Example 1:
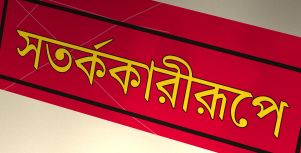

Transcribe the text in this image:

সতর্ককারীরূপে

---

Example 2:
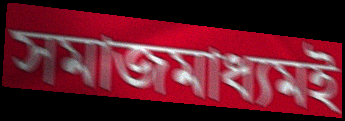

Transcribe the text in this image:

সমাজমাধ্যমই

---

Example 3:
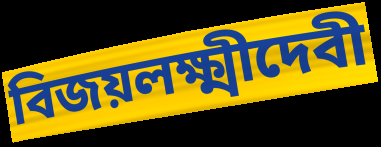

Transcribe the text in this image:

বিজয়লক্ষ্মীদেবী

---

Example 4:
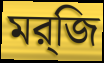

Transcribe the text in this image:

মর্‌জি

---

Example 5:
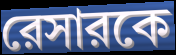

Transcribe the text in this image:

রেসারকে